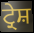
ਟ੍ਰੇਸ਼